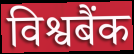
विश्वबैंक